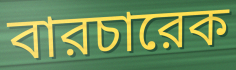
বারচারেক